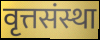
वृत्तसंस्था